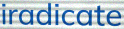
iradicate